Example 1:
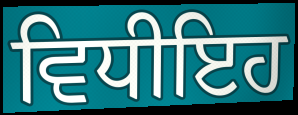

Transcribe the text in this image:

ਵਿਧੀਇਹ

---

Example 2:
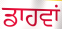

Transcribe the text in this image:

ਡਾਹਵਾਂ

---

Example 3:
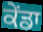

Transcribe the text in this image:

ਕੇਂਡਾ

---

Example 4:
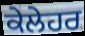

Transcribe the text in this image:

ਕੇਲੇਹਰ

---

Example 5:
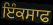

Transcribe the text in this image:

ਇੰਕਸਾਫ